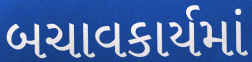
બચાવકાર્યમાં